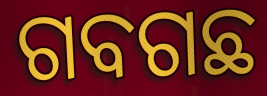
ଗବଗଛ